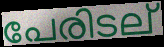
പേരിടല്